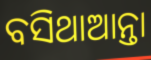
ବସିଥାଆନ୍ତା